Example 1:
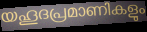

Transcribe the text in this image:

യഹൂദപ്രമാണികളും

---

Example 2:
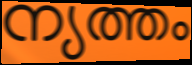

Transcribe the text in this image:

ന്യത്തം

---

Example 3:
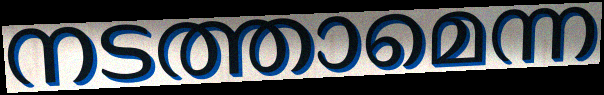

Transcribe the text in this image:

നടത്താമെന്ന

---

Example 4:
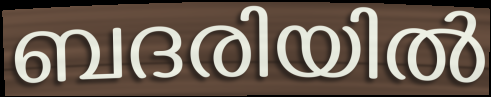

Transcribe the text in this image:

ബദരിയിൽ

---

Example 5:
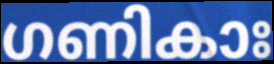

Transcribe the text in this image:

ഗണികാഃ